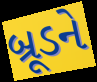
બ્રૂડને